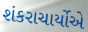
શંકરાચાર્યોએ